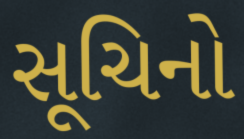
સૂચિનો